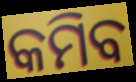
କମିବ